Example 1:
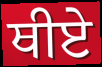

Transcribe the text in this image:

ਥੀਏ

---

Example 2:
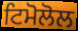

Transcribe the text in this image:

ਟਿਮੋਲੋਲ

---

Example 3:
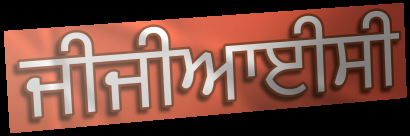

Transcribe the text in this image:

ਜੀਜੀਆਈਸੀ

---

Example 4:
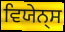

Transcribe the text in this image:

ਵਿਯੇਨ੍ਸ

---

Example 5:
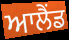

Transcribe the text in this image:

ਆਲੈਂਡ